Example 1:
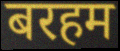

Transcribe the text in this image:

बरहम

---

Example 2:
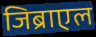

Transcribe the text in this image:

जिब्राएल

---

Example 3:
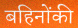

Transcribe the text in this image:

बहिनोंकी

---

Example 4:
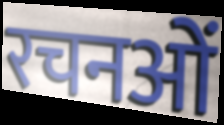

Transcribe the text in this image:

रचनओं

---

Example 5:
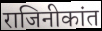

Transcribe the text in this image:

राजिनीकांत